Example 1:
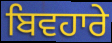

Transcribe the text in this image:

ਬਿਵਹਾਰੇ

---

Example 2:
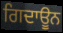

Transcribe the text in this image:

ਗਿਦਾਊਨ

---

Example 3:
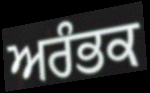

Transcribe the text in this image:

ਅਰੰਭਕ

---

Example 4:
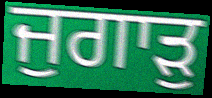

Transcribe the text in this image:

ਜੁਗਾੜੁ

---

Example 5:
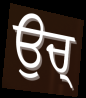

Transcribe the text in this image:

ਉਚ੍